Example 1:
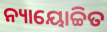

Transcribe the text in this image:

ନ୍ୟାୟୋଚ୍ଚିତ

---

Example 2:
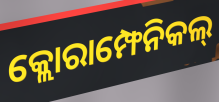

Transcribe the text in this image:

କ୍ଲୋରାମ୍ଫେନିକଲ୍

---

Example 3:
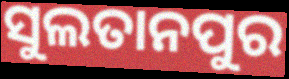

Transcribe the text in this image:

ସୁଲତାନପୁର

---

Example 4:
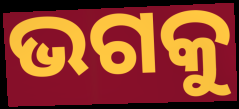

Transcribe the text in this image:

ଭଗକୁ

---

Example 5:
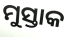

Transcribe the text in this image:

ମୁସ୍ତାକ